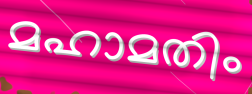
മഹാമതിം